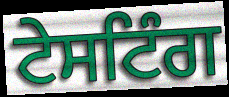
ਟੇਸਟਿੰਗ